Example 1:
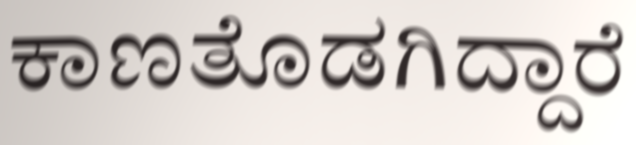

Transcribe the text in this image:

ಕಾಣತೊಡಗಿದ್ದಾರೆ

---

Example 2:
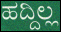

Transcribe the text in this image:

ಹದ್ದಿಲ್ಲ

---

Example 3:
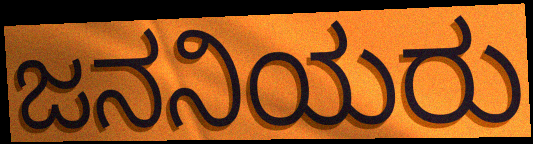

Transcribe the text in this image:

ಜನನಿಯರು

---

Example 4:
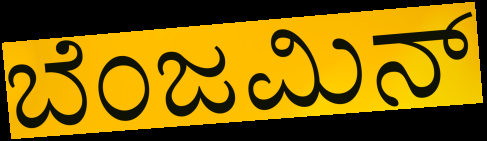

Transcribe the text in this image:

ಬೆಂಜಮಿನ್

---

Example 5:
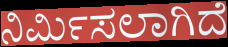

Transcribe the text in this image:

ನಿರ್ಮಿಸಲಾಗಿದೆ